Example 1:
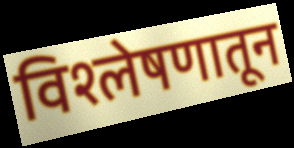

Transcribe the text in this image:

विश्लेषणातून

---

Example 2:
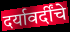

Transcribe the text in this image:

दर्यावर्दींचे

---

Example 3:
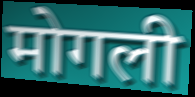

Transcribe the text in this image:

मोगली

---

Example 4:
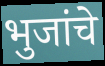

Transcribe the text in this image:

भुजांचे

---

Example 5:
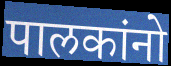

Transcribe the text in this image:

पालकांनो